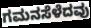
ಗಮನಸೆಳೆದವು